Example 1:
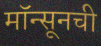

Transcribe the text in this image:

मॉन्सूनची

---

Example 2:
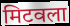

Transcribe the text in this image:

मिटवला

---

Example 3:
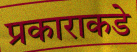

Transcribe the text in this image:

प्रकाराकडे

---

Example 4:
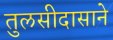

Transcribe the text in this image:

तुलसीदासाने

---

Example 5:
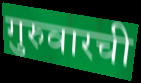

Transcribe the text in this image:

गुरुवारची